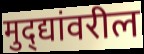
मुद्द्यांवरील